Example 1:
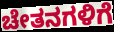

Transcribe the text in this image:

ಚೇತನಗಳಿಗೆ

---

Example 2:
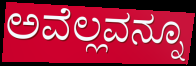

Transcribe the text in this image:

ಅವೆಲ್ಲವನ್ನೂ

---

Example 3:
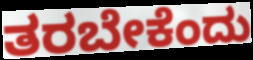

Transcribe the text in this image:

ತರಬೇಕೆಂದು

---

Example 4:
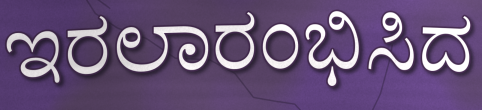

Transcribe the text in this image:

ಇರಲಾರಂಭಿಸಿದ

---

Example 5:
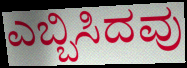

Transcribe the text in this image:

ಎಬ್ಬಿಸಿದವು